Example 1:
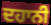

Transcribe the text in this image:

ਦਹਾਨੀ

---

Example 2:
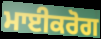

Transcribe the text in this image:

ਮਾਈਕਰੋਗ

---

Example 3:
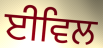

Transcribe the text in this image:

ਈਵਿਲ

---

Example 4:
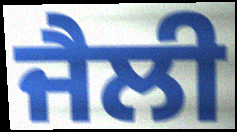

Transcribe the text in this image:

ਜੈਲੀ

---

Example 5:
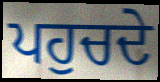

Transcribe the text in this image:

ਪਹੁਚਦੇ